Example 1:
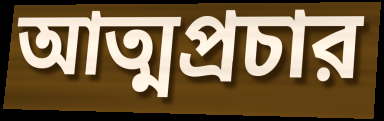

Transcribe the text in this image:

আত্মপ্রচার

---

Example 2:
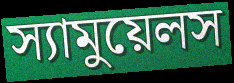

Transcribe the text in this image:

স্যামুয়েলস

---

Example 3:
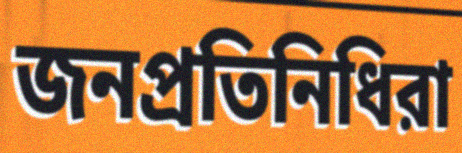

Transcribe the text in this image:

জনপ্রতিনিধিরা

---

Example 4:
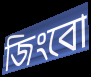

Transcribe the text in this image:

জিংবো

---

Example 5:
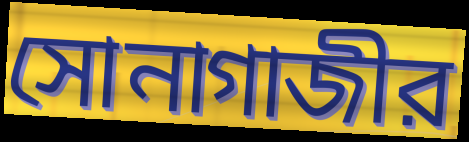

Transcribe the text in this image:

সোনাগাজীর